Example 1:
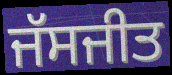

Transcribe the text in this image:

ਜੱਸਜੀਤ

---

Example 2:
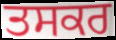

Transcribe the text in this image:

ਤਸਕਰ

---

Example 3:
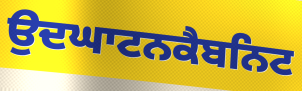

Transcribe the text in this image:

ਉਦਘਾਟਨਕੈਬਨਿਟ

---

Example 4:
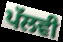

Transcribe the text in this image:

ਪੱਲਵੀ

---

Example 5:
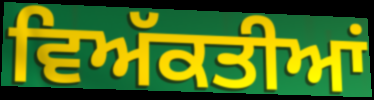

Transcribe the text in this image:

ਵਿਅੱਕਤੀਆਂ